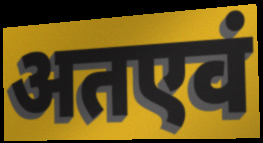
अतएवं